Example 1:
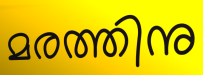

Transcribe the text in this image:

മരത്തിനു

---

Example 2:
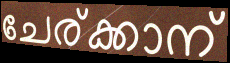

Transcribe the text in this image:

ചേര്ക്കാന്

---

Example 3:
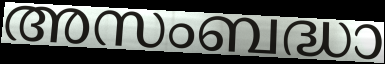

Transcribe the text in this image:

അസംബദ്ധാ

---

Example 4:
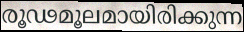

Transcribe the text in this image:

രൂഢമൂലമായിരിക്കുന്ന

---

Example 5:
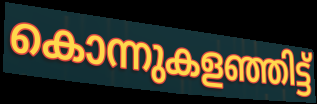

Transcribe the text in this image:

കൊന്നുകളഞ്ഞിട്ട്